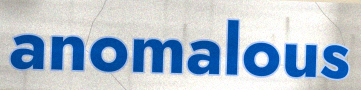
anomalous